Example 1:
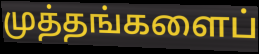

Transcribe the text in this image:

முத்தங்களைப்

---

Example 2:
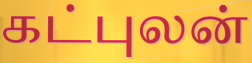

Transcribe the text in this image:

கட்புலன்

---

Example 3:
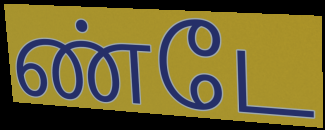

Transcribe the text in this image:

ண்டே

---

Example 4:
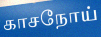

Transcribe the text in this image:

காசநோய்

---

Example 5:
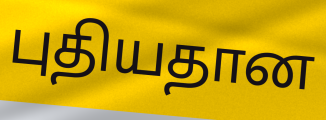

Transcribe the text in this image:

புதியதான